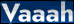
Vaaah